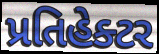
પ્રતિહેક્ટર